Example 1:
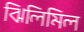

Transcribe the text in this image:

ঝিলিমিল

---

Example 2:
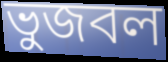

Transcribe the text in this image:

ভুজবল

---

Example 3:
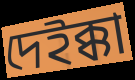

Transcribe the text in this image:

দেইক্কা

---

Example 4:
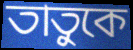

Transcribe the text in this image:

তাতুকে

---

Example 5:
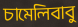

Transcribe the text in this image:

চামেলিবাবু